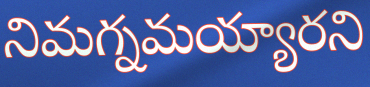
నిమగ్నమయ్యారని